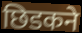
छिडकने